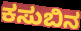
ಕಸುಬಿನ